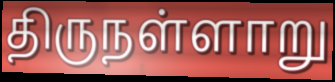
திருநள்ளாறு